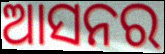
ଆସନର